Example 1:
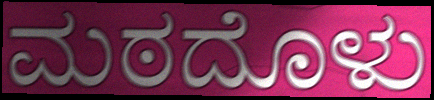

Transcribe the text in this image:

ಮಠದೊಳು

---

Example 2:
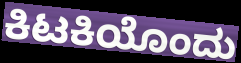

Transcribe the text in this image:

ಕಿಟಕಿಯೊಂದು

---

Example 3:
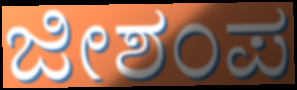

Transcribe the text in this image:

ಜೀಶಂಪ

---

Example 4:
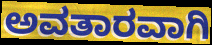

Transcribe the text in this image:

ಅವತಾರವಾಗಿ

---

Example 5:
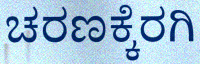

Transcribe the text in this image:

ಚರಣಕ್ಕೆರಗಿ